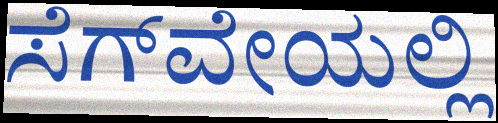
ಸೆಗ್‌ವೇಯಲ್ಲಿ